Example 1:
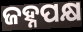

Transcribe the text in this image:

ଜହ୍ନପକ୍ଷ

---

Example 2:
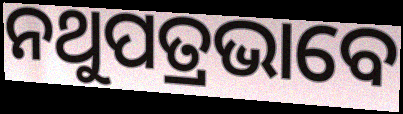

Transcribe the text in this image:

ନଥୁପତ୍ରଭାବେ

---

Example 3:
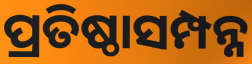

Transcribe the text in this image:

ପ୍ରତିଷ୍ଠାସମ୍ପନ୍ନ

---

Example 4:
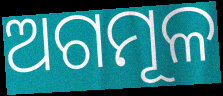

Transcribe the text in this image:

ଅଗମୂଳ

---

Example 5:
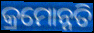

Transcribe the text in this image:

କ୍ରମୋନ୍ନତି